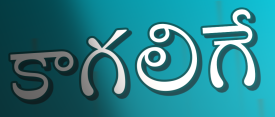
కాగలిగే